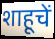
शाहूचें